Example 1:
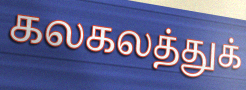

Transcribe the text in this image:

கலகலத்துக்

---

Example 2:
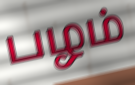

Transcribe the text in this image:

பழம்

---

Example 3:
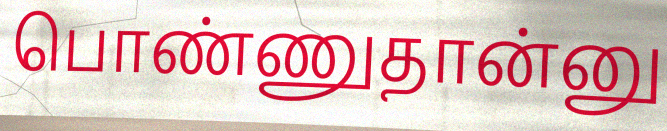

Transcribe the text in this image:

பொண்ணுதான்னு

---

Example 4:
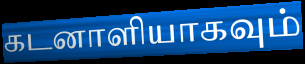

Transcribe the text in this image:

கடனாளியாகவும்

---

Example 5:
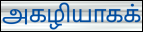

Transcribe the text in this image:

அகழியாகக்